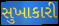
સુખાકારી